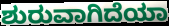
ಶುರುವಾಗಿದೆಯಾ